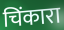
चिंकारा